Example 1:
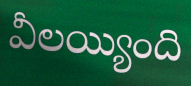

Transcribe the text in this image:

వీలయ్యింది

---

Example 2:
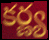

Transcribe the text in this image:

కర్ణ్య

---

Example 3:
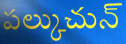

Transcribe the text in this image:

పల్కుచున్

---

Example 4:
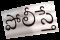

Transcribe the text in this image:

పోలీస్తే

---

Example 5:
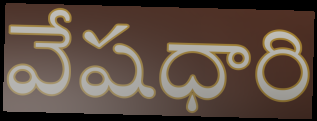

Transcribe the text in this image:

వేషధారి